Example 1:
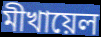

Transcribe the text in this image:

মীখায়েল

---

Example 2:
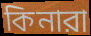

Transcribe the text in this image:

কিনারা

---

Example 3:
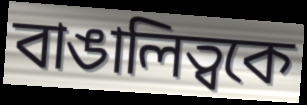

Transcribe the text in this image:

বাঙালিত্বকে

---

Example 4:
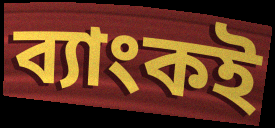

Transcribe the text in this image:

ব্যাংকই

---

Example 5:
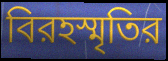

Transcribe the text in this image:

বিরহস্মৃতির